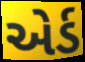
એર્ડ